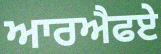
ਆਰਐਫਏ